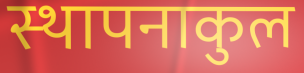
स्थापनाकुल